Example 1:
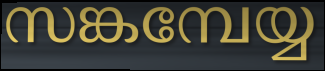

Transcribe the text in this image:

സങ്കമ്പേയ്യ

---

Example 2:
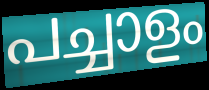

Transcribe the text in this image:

പച്ചാളം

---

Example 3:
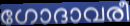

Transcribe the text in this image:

ഗോദാവരീ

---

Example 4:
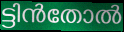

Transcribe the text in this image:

ട്ടിൻതോൽ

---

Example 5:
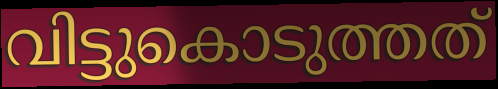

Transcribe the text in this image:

വിട്ടുകൊടുത്തത്